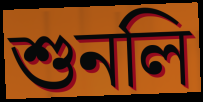
শুনলি